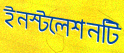
ইনস্টলেশনটি